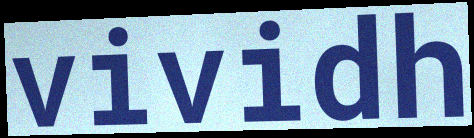
vividh